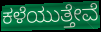
ಕಳೆಯುತ್ತೇವೆ